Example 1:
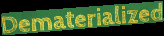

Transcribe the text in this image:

Dematerialized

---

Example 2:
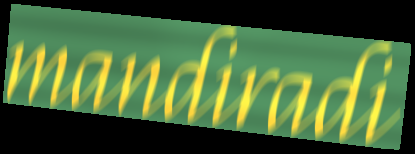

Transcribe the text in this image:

mandiradi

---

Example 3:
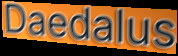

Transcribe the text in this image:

Daedalus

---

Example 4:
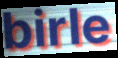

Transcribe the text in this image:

birle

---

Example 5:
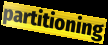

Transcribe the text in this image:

partitioning